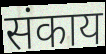
संकाय